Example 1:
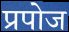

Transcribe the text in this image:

प्रपोज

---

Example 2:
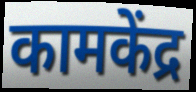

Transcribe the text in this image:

कामकेंद्र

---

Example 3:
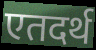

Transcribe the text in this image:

एतदर्थ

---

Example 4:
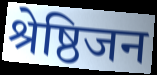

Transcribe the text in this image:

श्रेष्ठिजन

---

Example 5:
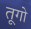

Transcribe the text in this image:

तूगो